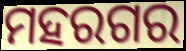
ମହରଗର